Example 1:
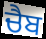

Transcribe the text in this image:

ਚੈਬ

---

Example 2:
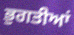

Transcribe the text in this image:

ਭੁਗਤੀਆਂ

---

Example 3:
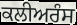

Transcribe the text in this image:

ਕਲੀਅਰੰਸ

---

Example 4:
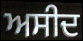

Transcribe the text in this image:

ਅਸੀਦ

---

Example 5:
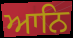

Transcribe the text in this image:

ਆਨਿ